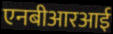
एनबीआरआई